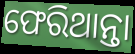
ଫେରିଥାନ୍ତା